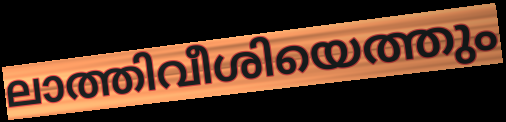
ലാത്തിവീശിയെത്തും